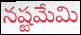
నష్టమేమి